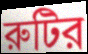
রুটির